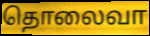
தொலைவா